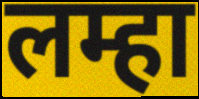
लम्हा